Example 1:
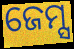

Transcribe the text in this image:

ଜେମ୍ସ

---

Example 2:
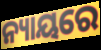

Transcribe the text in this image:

ନ୍ୟାୟରେ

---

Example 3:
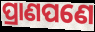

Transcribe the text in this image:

ପ୍ରାଣପଣେ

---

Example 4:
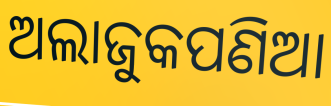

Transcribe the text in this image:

ଅଲାଜୁକପଣିଆ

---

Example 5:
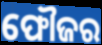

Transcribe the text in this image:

ଫୌଜର